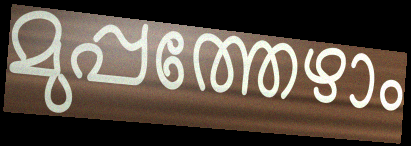
മുപ്പത്തേഴാം